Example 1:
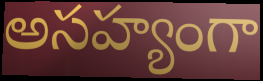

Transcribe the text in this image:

అసహ్యంగా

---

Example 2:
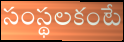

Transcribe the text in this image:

సంస్థలకంటే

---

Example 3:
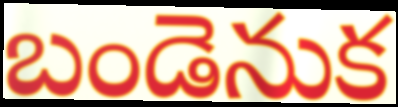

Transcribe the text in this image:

బండెనుక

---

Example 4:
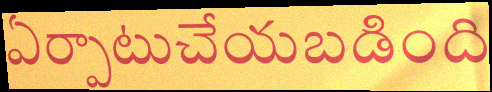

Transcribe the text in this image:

ఏర్పాటుచేయబడింది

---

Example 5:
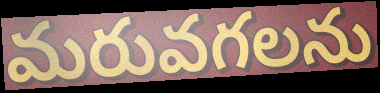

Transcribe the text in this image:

మరువగలను